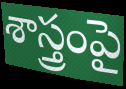
శాస్త్రంపై